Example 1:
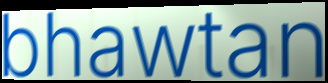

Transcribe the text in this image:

bhawtan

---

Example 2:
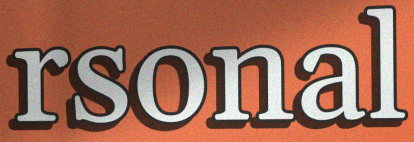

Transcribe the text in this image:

rsonal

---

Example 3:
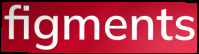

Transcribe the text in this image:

figments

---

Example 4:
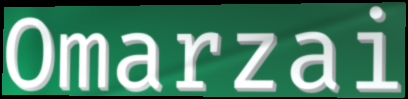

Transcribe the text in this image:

Omarzai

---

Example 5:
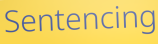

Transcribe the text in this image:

Sentencing